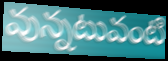
వున్నటువంటి